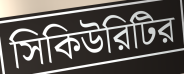
সিকিউরিটির